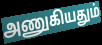
அணுகியதும்